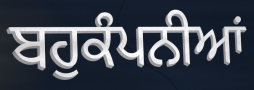
ਬਹੁਕੰਪਨੀਆਂ